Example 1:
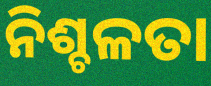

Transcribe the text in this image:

ନିଶ୍ଚଳତା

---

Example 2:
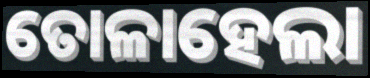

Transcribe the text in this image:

ତୋଳାହେଲା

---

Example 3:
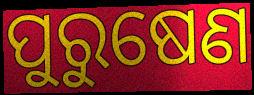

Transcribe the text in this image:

ପୁରୁଷେଣ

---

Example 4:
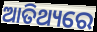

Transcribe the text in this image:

ଆତିଥ୍ୟରେ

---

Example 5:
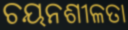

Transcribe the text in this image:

ଚୟନଶୀଳତା